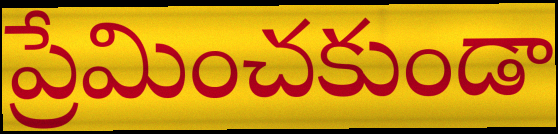
ప్రేమించకుండా